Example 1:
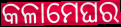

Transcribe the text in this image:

କଳାମେଘର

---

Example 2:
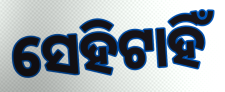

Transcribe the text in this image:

ସେହିଟାହିଁ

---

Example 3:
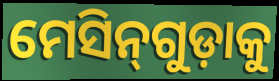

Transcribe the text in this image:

ମେସିନ୍‌ଗୁଡ଼ାକୁ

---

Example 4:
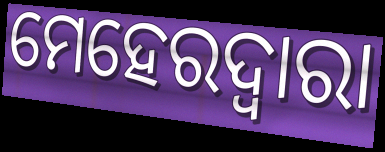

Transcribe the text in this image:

ମେହେରଦ୍ୱାରା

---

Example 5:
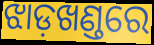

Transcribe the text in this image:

ଝାଡ଼ଖଣ୍ଡରେ